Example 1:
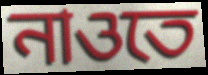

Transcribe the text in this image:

নাওতে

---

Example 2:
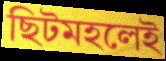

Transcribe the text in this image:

ছিটমহলেই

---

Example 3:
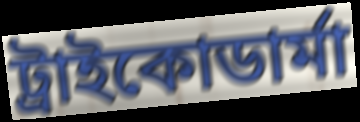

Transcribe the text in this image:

ট্রাইকোডার্মা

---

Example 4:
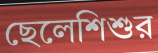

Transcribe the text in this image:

ছেলেশিশুর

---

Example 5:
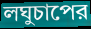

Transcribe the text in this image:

লঘুচাপের